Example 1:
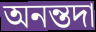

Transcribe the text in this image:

অনন্তদা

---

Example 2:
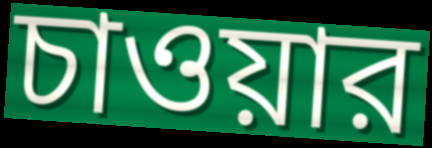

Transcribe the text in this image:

চাওয়ার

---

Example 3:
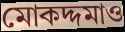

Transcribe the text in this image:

মোকদ্দমাও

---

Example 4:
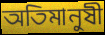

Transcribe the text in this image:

অতিমানুষী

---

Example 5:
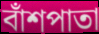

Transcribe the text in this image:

বাঁশপাতা